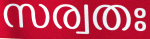
സര്വതഃ